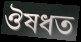
ঔষধত